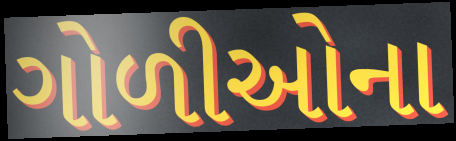
ગોળીઓના